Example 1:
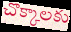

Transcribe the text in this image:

చొక్కాలకు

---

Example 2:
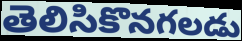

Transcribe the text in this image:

తెలిసికొనగలడు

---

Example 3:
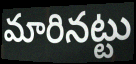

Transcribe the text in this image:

మారినట్టు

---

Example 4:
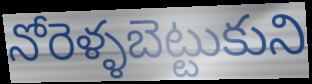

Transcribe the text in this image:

నోరెళ్ళబెట్టుకుని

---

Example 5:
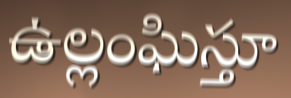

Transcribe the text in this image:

ఉల్లంఘిస్తూ